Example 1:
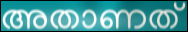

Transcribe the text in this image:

അതാണത്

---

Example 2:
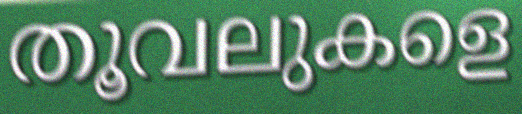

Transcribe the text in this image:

തൂവലുകളെ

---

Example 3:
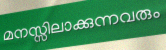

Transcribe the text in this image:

മനസ്സിലാക്കുന്നവരും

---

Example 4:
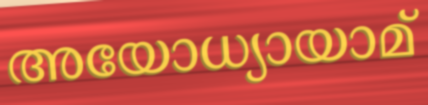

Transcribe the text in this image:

അയോധ്യായാമ്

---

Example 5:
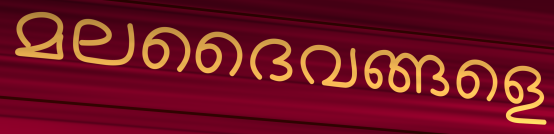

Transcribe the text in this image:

മലദൈവങ്ങളെ